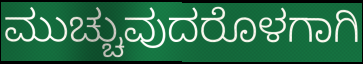
ಮುಚ್ಚುವುದರೊಳಗಾಗಿ